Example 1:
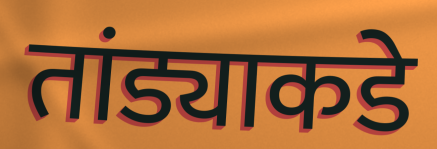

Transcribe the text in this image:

तांड्याकडे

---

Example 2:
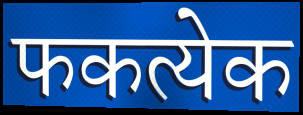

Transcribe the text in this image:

फकत्येक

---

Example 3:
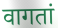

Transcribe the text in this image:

वागतां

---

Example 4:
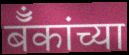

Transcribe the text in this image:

बॅँकांच्या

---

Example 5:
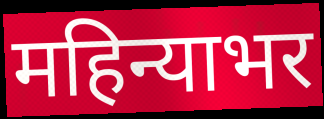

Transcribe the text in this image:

महिन्याभर